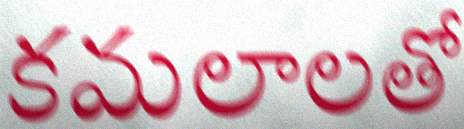
కమలాలతో